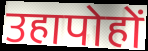
उहापोहों